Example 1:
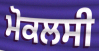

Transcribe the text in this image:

ਮੋਕਲਸੀ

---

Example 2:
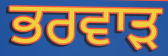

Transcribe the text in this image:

ਭਰਵਾੜ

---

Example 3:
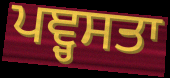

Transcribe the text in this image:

ਪਞ੍ਚਸਤਾ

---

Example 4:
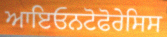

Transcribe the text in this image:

ਆਇਓਨਟੋਫੋਰੇਸਿਸ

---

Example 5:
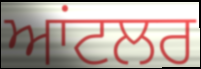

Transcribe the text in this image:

ਆਂਟਲਰ